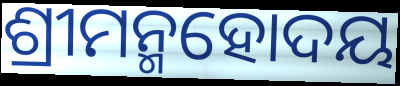
ଶ୍ରୀମନ୍ମହୋଦୟ